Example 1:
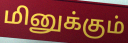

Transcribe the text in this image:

மினுக்கும்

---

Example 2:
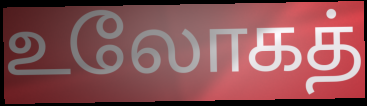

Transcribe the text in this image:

உலோகத்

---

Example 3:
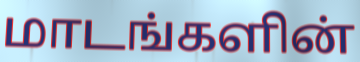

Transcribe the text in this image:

மாடங்களின்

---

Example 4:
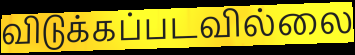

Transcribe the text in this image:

விடுக்கப்படவில்லை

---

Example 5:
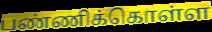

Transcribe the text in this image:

பண்ணிக்கொள்ள